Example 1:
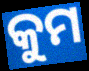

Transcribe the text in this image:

କୁମ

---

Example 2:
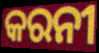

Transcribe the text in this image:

କରନୀ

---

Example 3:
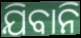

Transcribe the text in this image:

ଯିବାନି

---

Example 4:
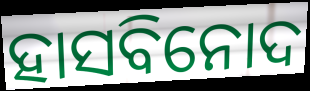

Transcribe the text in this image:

ହାସବିନୋଦ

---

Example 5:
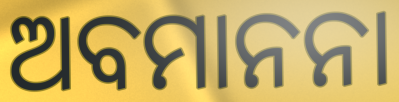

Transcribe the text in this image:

ଅବମାନନା